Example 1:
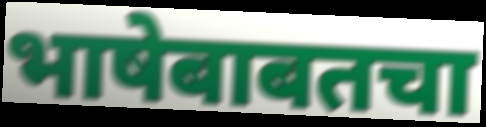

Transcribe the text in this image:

भाषेबाबतचा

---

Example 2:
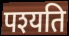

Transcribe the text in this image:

पश्यति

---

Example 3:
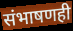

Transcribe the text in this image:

संभाषणही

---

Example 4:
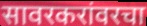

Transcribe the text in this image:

सावरकरांवरचा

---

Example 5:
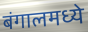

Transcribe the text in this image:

बंगालमध्ये